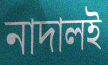
নাদালই